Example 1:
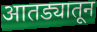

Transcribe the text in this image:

आतड्यातून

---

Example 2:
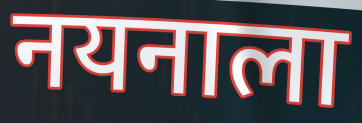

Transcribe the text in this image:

नयनाला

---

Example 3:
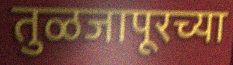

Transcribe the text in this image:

तुळजापूरच्या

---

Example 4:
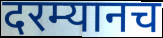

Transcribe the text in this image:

दरम्यानच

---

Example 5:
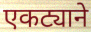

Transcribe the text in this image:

एकट्याने